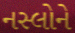
નસ્લોને